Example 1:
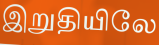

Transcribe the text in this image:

இறுதியிலே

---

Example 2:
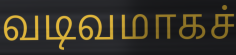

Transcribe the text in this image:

வடிவமாகச்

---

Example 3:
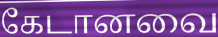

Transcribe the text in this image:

கேடானவை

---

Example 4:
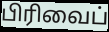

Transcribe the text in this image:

பிரிவைப்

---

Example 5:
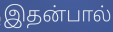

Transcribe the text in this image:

இதன்பால்